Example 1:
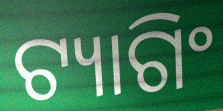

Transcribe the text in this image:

ଟ୍ୟାଗିଂ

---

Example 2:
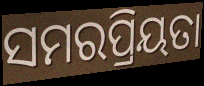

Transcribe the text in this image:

ସମରପ୍ରିୟତା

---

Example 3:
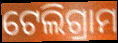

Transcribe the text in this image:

ଟେଲିଗ୍ରାମ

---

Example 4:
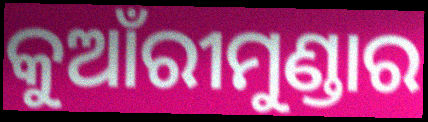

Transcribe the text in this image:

କୁଆଁରୀମୁଣ୍ଡାର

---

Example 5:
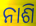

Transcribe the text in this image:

ନାଶି